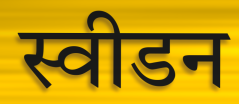
स्वीडन